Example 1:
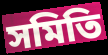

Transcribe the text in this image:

সমিতি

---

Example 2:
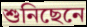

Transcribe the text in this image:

শুনিছেনে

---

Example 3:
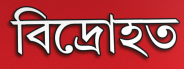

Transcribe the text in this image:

বিদ্ৰোহত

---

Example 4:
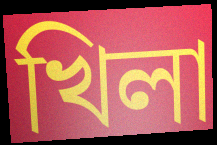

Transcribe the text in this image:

খিলা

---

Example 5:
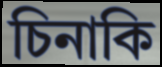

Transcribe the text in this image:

চিনাকি